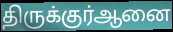
திருக்குர்ஆனை